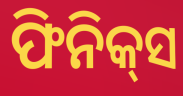
ଫିନିକ୍‌ସ